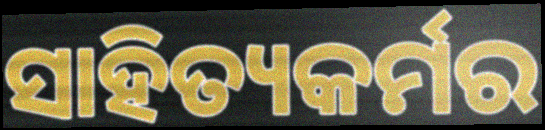
ସାହିତ୍ୟକର୍ମର